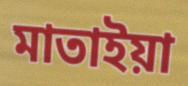
মাতাইয়া